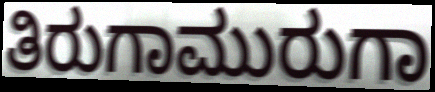
ತಿರುಗಾಮುರುಗಾ